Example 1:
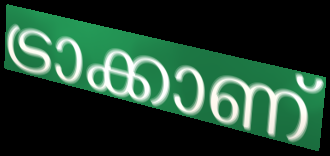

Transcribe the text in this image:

ട്രാക്കാണ്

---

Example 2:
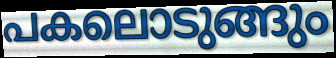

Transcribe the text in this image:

പകലൊടുങ്ങും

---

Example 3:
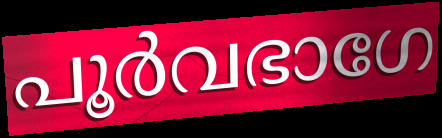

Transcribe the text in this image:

പൂർവഭാഗേ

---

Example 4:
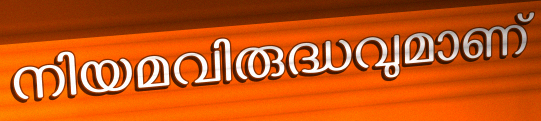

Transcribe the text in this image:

നിയമവിരുദ്ധവുമാണ്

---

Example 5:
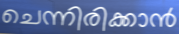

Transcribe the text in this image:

ചെന്നിരിക്കാൻ